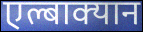
एल्बाक्यान